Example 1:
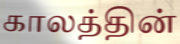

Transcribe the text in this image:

காலத்தின்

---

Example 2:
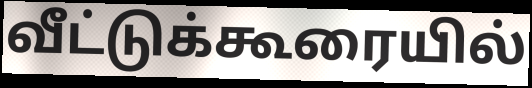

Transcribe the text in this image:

வீட்டுக்கூரையில்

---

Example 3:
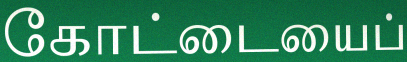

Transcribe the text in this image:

கோட்டையைப்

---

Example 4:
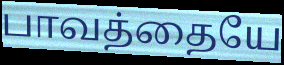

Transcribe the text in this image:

பாவத்தையே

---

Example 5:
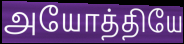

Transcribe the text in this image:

அயோத்தியே